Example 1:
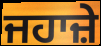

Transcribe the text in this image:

ਜਹਾਜ਼ੇ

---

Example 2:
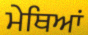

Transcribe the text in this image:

ਮੇਥਿਆਂ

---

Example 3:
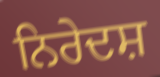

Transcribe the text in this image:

ਨਿਰੇਦਸ਼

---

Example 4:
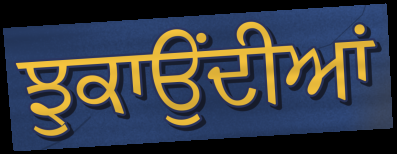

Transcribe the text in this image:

ਝੁਕਾਉਂਦੀਆਂ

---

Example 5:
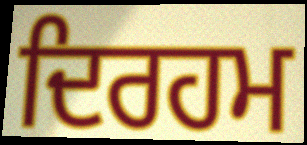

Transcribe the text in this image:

ਦਿਰਹਮ